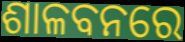
ଶାଳବନରେ